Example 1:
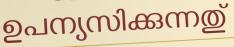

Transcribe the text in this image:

ഉപന്യസിക്കുന്നതു്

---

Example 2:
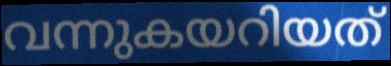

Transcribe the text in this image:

വന്നുകയറിയത്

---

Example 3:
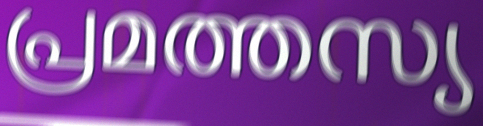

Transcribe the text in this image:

പ്രമത്തസ്യ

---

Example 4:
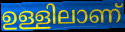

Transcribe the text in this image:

ഉള്ളിലാണ്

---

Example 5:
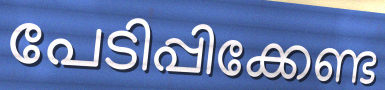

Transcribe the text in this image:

പേടിപ്പിക്കേണ്ട